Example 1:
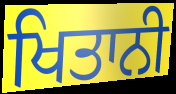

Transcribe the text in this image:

ਖਿਤਾਨੀ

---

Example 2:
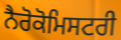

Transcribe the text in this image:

ਨੈਰੋਕੋਮਿਸਟਰੀ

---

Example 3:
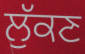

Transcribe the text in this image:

ਲੁੱਕਣ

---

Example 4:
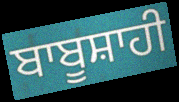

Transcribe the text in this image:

ਬਾਬੂਸ਼ਾਹੀ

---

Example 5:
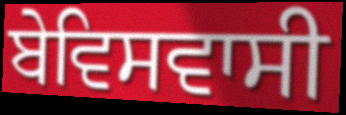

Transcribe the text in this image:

ਬੇਵਿਸਵਾਸੀ